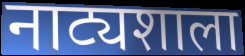
नाट्यशाला